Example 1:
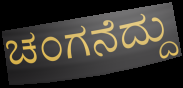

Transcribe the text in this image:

ಚಂಗನೆದ್ದು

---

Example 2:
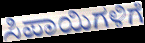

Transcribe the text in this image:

ಸಿಪಾಯಿಗಳಿಗೆ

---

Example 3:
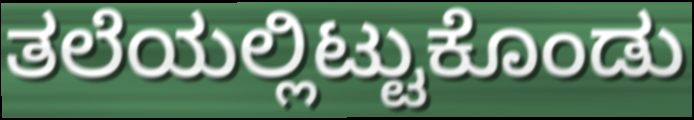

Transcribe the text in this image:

ತಲೆಯಲ್ಲಿಟ್ಟುಕೊಂಡು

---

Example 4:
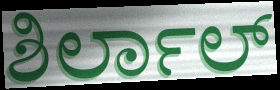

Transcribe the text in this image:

ಶಿರ್ಲಾಲ್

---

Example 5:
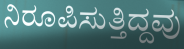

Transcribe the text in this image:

ನಿರೂಪಿಸುತ್ತಿದ್ದವು